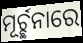
ମୂର୍ଚ୍ଛନାରେ